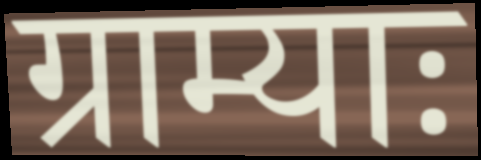
ग्राम्याः